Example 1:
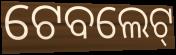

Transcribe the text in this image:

ଟେବଲେଟ୍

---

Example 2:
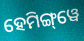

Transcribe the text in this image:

ହେମିଙ୍ଗ୍‌ୱେ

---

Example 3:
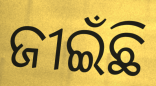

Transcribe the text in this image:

ଜୀଇଁଛି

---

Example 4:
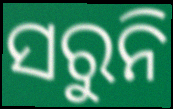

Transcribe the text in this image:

ସରୁନି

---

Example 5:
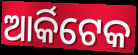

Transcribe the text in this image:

ଆର୍କିଟେକ